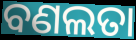
ବଣଲତା